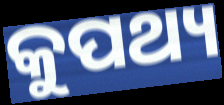
କୁପଥ୍ୟ